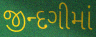
જીન્દગીમાં